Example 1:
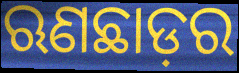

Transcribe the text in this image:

ଋଣଛାଡ଼ର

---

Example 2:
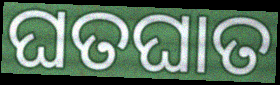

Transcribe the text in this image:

ଘତଘାତ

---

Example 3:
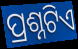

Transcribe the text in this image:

ପ୍ରଶ୍ନଟିଏ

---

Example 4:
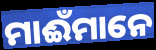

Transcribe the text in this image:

ମାଈଁମାନେ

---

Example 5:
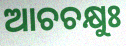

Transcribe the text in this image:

ଆଚଚକ୍ଷୁଃ